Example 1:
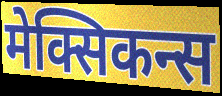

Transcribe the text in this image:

मेक्सिकन्स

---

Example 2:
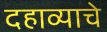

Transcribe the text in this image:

दहाव्याचे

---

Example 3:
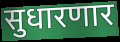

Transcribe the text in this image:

सुधारणार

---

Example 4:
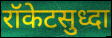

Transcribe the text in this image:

रॉकेटसुध्दा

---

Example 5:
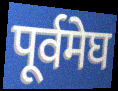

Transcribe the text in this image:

पूर्वमेघ